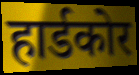
हार्डकोर